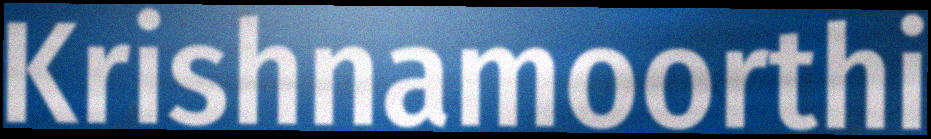
Krishnamoorthi